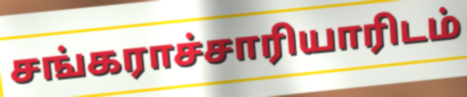
சங்கராச்சாரியாரிடம்